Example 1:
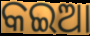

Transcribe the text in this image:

କଇଆ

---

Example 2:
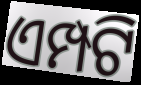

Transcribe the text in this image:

ଏମ୍ପଟି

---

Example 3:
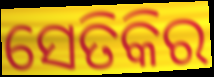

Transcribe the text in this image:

ସେତିକିର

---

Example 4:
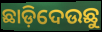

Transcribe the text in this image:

ଛାଡ଼ିଦେଉଛୁ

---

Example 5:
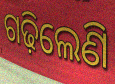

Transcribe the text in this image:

ଗଢ଼ିଲେଣି